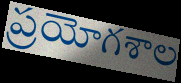
ప్రయోగశాల